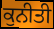
ਕੁਨੀਤੀ